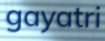
gayatri